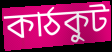
কাঠকুট